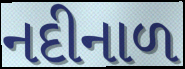
નદીનાળ